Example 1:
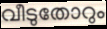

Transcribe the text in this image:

വീടുതോറും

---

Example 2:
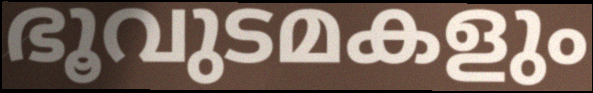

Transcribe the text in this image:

ഭൂവുടമകളും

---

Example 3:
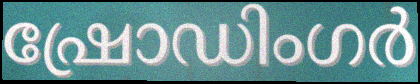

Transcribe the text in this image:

ഷ്രോഡിംഗർ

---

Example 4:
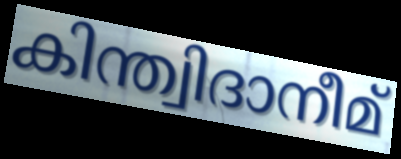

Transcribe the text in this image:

കിന്ത്വിദാനീമ്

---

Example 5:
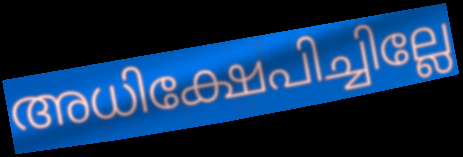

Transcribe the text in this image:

അധിക്ഷേപിച്ചില്ലേ